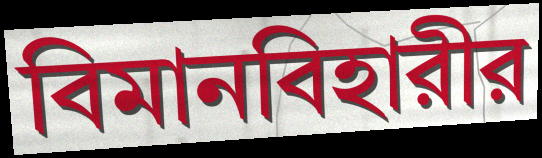
বিমানবিহারীর